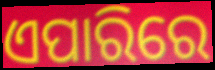
ଏପାରିରେ